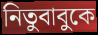
নিতুবাবুকে